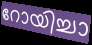
റോയിച്ചാ